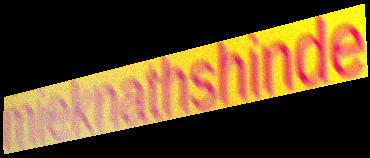
mieknathshinde